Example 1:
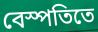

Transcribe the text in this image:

বেস্পতিতে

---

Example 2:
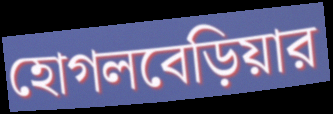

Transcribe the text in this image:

হোগলবেড়িয়ার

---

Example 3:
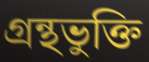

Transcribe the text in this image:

গ্রন্থভুক্তি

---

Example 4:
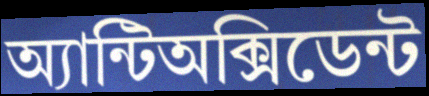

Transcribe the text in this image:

অ্যান্টিঅক্সিডেন্ট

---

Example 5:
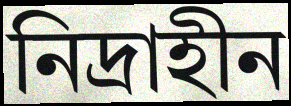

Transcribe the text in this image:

নিদ্রাহীন